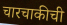
चारचाकीची